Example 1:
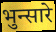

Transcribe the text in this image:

भुन्सारे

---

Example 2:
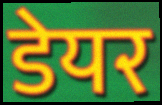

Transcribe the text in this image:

डेयर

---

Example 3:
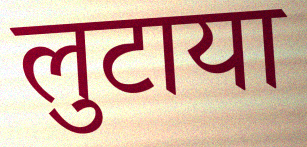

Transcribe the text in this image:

लुटाया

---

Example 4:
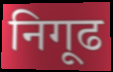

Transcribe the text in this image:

निगूढ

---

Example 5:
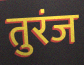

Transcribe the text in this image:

तुरंज